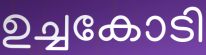
ഉച്ചകോടി